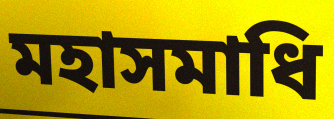
মহাসমাধি